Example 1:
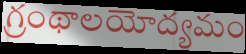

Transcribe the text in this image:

గ్రంథాలయోద్యమం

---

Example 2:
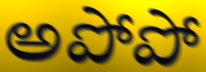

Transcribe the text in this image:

అపోపో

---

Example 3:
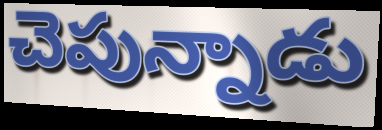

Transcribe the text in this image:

చెపున్నాడు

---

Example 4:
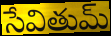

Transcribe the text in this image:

సేవితుమ్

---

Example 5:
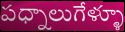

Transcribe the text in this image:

పధ్నాలుగేళ్ళూ